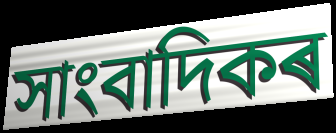
সাংবাদিকৰ